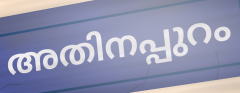
അതിനപ്പുറം